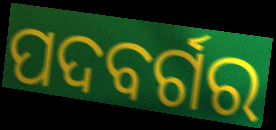
ପଦବର୍ଗର